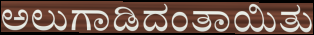
ಅಲುಗಾಡಿದಂತಾಯಿತು